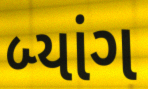
બ્યાંગ